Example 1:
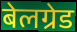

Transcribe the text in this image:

बेलग्रेड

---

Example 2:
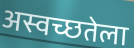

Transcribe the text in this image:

अस्वच्छतेला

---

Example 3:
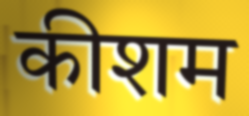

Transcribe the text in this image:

कीशम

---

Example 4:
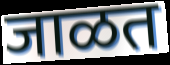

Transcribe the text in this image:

जाळत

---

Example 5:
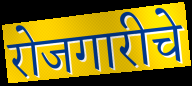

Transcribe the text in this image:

रोजगारीचे